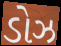
ડોઝ